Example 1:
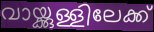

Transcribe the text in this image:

വായ്ക്കുള്ളിലേക്ക്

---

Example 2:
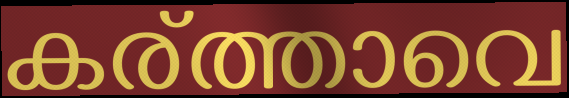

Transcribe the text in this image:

കര്ത്താവെ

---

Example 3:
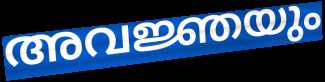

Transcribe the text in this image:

അവജ്ഞയും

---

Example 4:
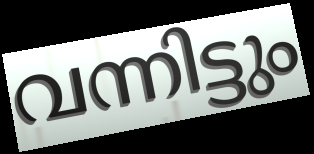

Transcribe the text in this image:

വന്നിട്ടും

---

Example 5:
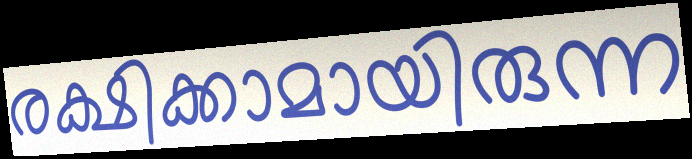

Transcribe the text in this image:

രക്ഷിക്കാമായിരുന്ന